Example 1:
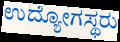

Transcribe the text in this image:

ಉದ್ಯೋಗಸ್ಥರು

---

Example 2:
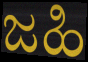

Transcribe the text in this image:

ಜಹಿ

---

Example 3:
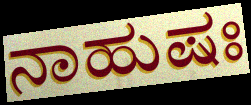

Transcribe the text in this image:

ನಾಹುಷಃ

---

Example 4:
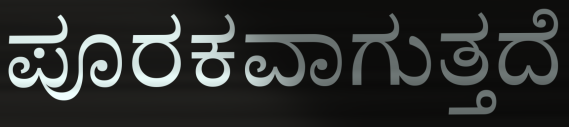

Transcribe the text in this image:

ಪೂರಕವಾಗುತ್ತದೆ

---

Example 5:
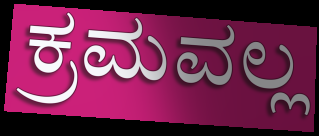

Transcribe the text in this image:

ಕ್ರಮವಲ್ಲ